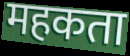
महकता